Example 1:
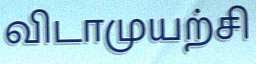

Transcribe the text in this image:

விடாமுயற்சி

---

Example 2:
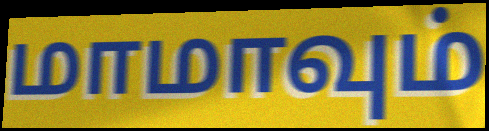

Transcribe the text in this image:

மாமாவும்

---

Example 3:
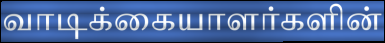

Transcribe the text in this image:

வாடிக்கையாளர்களின்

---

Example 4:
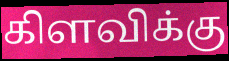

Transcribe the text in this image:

கிளவிக்கு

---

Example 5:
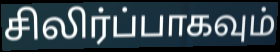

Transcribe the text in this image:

சிலிர்ப்பாகவும்